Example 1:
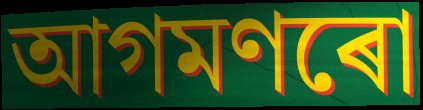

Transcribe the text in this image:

আগমণৰো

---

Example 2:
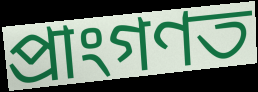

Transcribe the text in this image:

প্ৰাংগণত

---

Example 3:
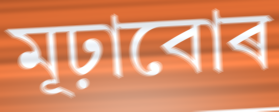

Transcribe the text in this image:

মূঢ়াবোৰ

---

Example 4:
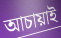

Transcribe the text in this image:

আচায়াই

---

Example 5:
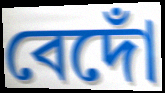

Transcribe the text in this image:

বেদোঁ